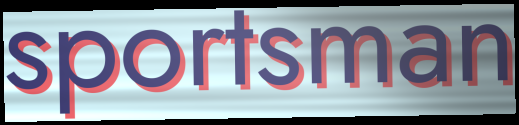
sportsman